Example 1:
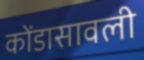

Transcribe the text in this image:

कोंडासावली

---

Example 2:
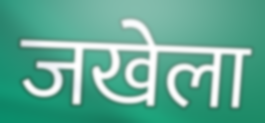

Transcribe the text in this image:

जखेला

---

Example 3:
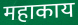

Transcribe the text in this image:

महाकाय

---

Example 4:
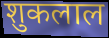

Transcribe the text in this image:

शुकलाल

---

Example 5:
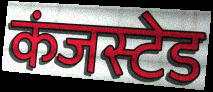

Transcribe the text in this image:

कंजस्टेड